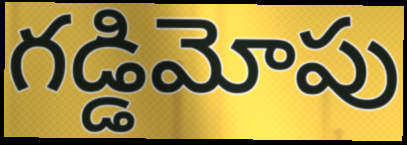
గడ్డిమోపు